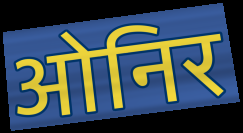
ओनिर